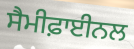
ਸੈਮੀਫ਼ਾਈਨਲ